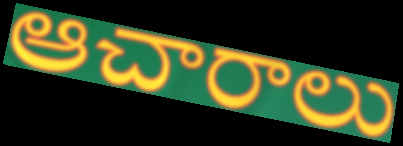
ఆచారాలు